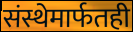
संस्थेमार्फतही